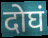
दोघं